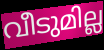
വീടുമില്ല